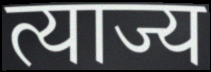
त्याज्य